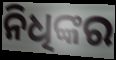
ନିଧିଙ୍କର